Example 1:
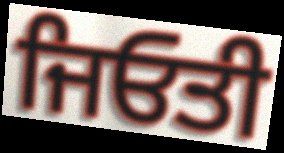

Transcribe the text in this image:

ਜਿਓਤੀ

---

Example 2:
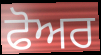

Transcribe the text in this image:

ਫੋਅਰ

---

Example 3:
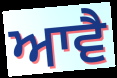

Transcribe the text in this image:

ਆਵੈ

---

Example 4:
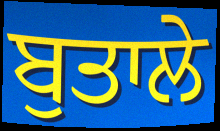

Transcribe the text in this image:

ਬੁਤਾਲੇ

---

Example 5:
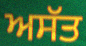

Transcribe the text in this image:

ਅਸੱਤ